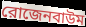
রোজেনবাউম